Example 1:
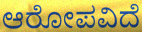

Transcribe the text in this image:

ಆರೋಪವಿದೆ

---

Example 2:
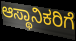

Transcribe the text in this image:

ಆಸ್ಥಾನಿಕರಿಗೆ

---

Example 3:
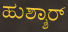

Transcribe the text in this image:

ಹುಶ್ಶಾರ್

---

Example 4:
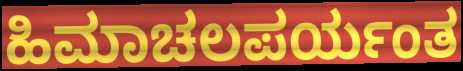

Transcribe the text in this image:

ಹಿಮಾಚಲಪರ್ಯಂತ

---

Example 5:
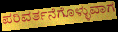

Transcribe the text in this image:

ಪರಿವರ್ತನೆಗೊಳ್ಳುವಾಗ